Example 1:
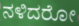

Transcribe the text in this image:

ನಳಿದರೋ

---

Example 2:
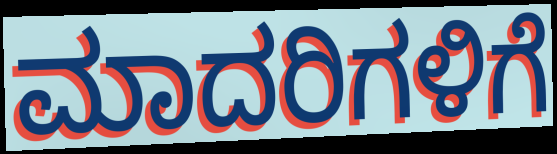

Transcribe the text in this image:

ಮಾದರಿಗಳಿಗೆ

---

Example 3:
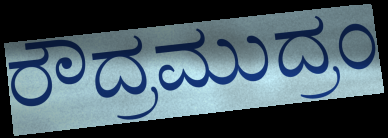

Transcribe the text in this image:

ರೌದ್ರಮುದ್ರಂ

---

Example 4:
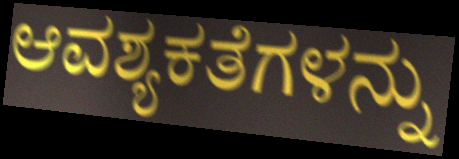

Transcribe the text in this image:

ಆವಶ್ಯಕತೆಗಳನ್ನು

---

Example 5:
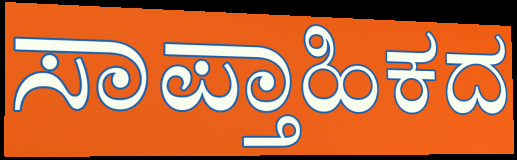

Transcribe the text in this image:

ಸಾಪ್ತಾಹಿಕದ